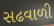
સઢવાળી